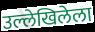
उल्लेखिलेला